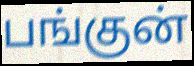
பங்குன்